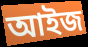
আইজ